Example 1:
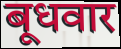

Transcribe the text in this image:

बूधवार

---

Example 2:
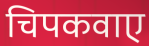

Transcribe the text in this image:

चिपकवाए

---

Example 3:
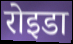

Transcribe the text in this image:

रोइडा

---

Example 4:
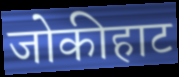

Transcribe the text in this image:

जोकीहाट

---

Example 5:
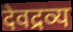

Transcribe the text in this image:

देवद्रव्य